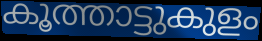
കൂത്താട്ടുകുളം